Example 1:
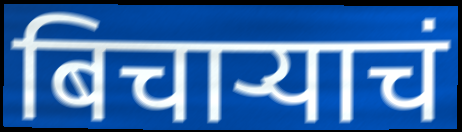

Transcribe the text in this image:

बिचाऱ्याचं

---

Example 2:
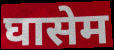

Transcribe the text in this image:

घासेम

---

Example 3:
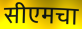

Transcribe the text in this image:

सीएमचा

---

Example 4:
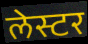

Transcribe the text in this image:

लेस्टर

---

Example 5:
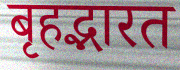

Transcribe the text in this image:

बृहद्भारत